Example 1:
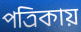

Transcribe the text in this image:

পত্রিকায়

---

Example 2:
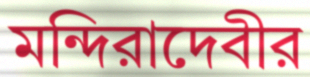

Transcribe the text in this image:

মন্দিরাদেবীর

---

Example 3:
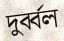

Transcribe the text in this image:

দুর্ব্বল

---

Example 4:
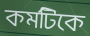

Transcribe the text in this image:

কর্মটিকে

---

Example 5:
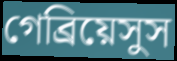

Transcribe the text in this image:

গেব্রিয়েসুস